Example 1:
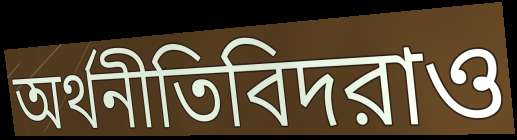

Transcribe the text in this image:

অর্থনীতিবিদরাও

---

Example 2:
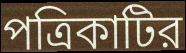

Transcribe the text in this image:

পত্রিকাটির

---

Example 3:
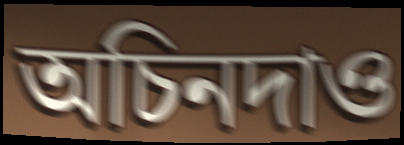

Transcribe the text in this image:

অচিনদাও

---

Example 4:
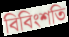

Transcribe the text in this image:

বিবিংশতি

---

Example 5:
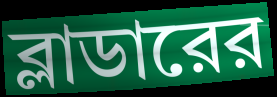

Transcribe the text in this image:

ব্লাডারের